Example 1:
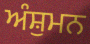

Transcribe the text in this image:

ਅੰਸ਼ੁਮਨ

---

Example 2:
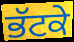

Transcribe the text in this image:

ਭੱਟਕੇ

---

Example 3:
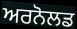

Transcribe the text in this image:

ਅਰਨੋਲਡ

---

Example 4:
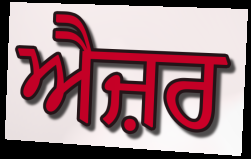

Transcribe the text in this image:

ਐਜ਼ਰ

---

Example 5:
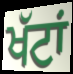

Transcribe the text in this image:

ਖੱਟਾਂ